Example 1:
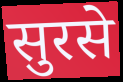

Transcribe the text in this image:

सुरसे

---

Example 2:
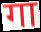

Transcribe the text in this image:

गा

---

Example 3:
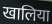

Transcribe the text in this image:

खालिया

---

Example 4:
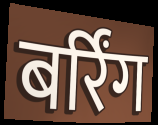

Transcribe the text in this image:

बर्रिंग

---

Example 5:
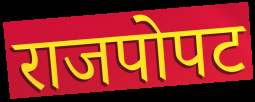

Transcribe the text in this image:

राजपोपट